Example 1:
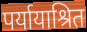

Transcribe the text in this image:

पर्यायाश्रित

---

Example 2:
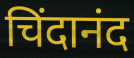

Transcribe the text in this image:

चिंदानंद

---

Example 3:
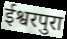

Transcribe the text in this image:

ईश्वरपुरा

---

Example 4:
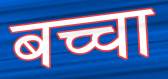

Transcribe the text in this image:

बच्‍चा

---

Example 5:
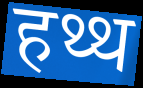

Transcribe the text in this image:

हथ्थ